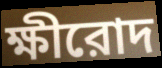
ক্ষীরোদ